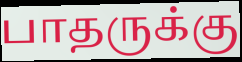
பாதருக்கு